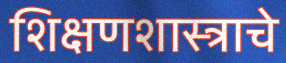
शिक्षणशास्त्राचे